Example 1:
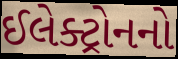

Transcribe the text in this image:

ઈલેક્ટ્રોનનો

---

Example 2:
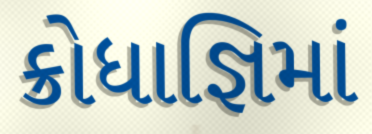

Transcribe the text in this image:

ક્રોધાજ્ઞિમાં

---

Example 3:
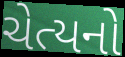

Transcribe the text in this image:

ચેત્યનો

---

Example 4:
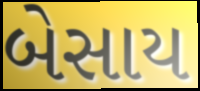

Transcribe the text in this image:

બેસાય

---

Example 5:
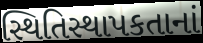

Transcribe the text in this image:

સ્થિતિસ્થાપકતાનાં